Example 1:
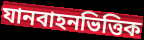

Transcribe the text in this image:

যানবাহনভিত্তিক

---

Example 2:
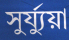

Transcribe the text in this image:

সুর্য্যুয়া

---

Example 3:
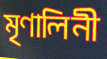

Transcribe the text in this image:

মৃণালিনী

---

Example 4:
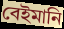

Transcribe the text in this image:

বেইমানি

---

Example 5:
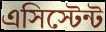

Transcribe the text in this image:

এসিস্টেন্ট